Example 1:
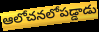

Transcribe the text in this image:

ఆలోచనలోపడ్డాడు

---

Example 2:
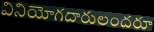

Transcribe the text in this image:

వినియోగదారులందరూ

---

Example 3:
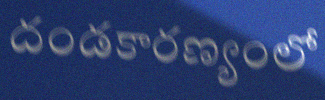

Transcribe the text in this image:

దండకారణ్యంలో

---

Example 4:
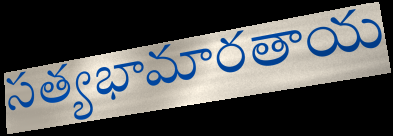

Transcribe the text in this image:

సత్యభామారతాయ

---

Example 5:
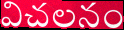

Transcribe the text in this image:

విచలనం